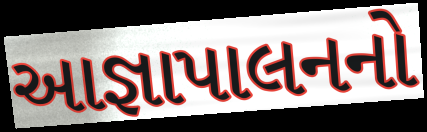
આજ્ઞાપાલનનો